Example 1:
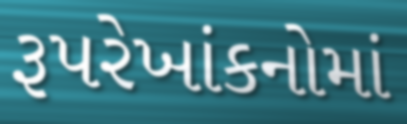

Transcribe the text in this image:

રૂપરેખાંકનોમાં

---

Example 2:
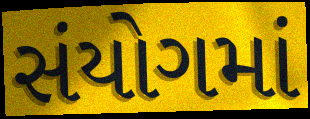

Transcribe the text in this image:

સંયોગમાં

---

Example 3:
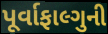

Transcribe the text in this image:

પૂર્વાફાલ્ગુની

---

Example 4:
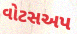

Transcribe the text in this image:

વોટસઅપ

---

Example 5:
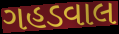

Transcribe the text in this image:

ગહડવાલ